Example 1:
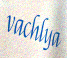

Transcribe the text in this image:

vachlya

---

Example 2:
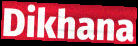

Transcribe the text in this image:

Dikhana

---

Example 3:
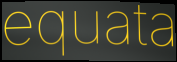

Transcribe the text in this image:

equata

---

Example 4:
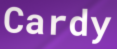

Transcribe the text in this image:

Cardy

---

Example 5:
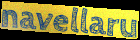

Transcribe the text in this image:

navellaru